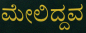
ಮೇಲಿದ್ದವ